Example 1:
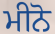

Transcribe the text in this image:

ਮੀਨੋ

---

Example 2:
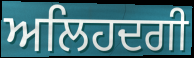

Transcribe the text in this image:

ਅਲਿਹਦਗੀ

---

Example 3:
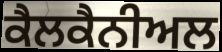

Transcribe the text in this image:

ਕੈਲਕੈਨੀਅਲ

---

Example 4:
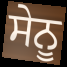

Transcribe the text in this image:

ਸੇਨੂ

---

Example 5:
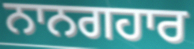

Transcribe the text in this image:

ਨਾਨਗਹਾਰ